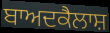
ਬਾਅਦਕੈਲਾਸ਼